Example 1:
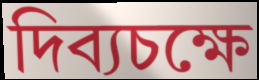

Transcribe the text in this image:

দিব্যচক্ষে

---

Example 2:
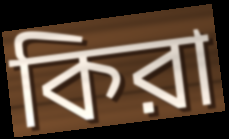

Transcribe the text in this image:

কিরা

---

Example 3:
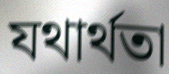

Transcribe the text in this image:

যথার্থতা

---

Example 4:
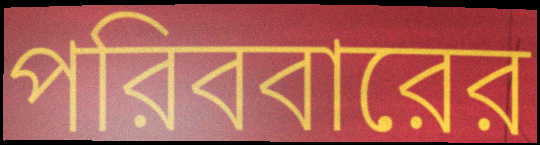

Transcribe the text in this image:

পরিববারের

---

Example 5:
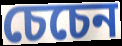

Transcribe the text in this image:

চেচেন